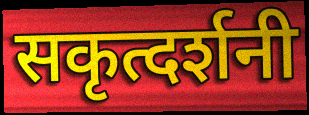
सकृत्दर्शनी